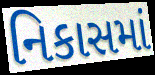
નિકાસમાં